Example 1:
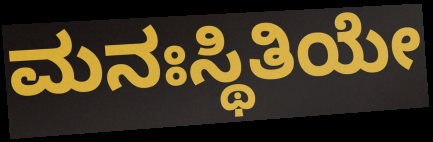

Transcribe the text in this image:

ಮನಃಸ್ಥಿತಿಯೇ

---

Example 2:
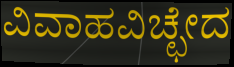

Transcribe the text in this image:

ವಿವಾಹವಿಚ್ಛೇದ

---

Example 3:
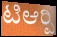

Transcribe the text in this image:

ಟಿಆರ್‍ಪಿ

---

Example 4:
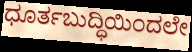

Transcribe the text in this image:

ಧೂರ್ತಬುದ್ಧಿಯಿಂದಲೇ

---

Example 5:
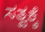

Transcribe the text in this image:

ಸತ್ವಕ್ಕೆ